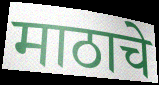
माठाचे